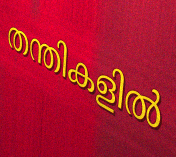
തന്തികളിൽ